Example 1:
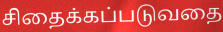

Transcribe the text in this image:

சிதைக்கப்படுவதை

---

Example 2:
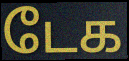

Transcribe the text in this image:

டேக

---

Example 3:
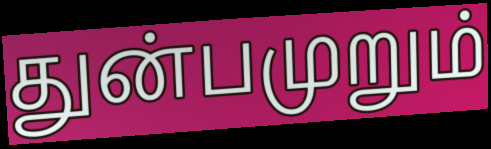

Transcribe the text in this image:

துன்பமுறும்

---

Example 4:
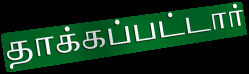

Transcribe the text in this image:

தாக்கப்பட்டார்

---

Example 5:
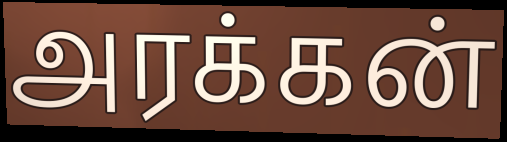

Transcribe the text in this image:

அரக்கன்